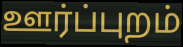
ஊர்ப்புறம்